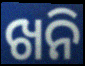
ଖନି